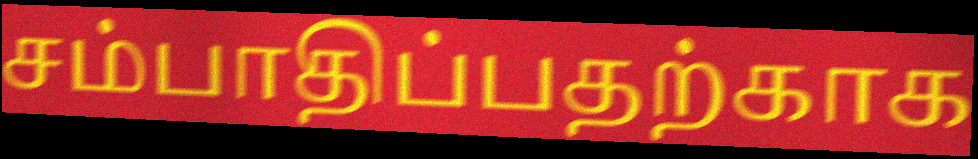
சம்பாதிப்பதற்காக